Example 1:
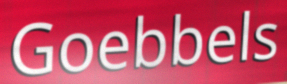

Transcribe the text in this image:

Goebbels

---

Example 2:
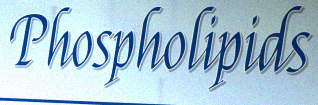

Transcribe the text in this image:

Phospholipids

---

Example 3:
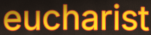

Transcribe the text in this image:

eucharist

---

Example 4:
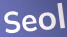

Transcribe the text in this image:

Seol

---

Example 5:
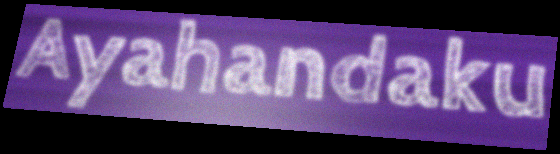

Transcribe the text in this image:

Ayahandaku